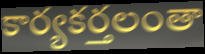
కార్యకర్తలంతా